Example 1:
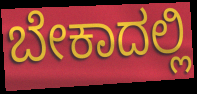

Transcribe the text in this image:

ಬೇಕಾದಲ್ಲಿ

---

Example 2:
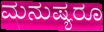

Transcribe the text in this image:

ಮನುಷ್ಯರೂ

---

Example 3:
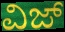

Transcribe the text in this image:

ವಿಜ್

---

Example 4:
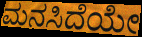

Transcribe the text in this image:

ಮನಸಿದೆಯೇ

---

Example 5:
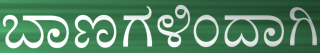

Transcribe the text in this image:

ಬಾಣಗಳಿಂದಾಗಿ